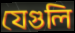
যেগুলি